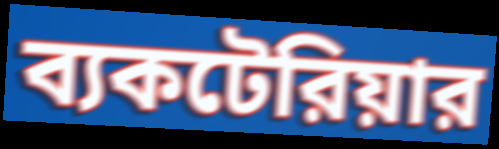
ব্যকটেরিয়ার